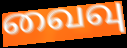
வைவு